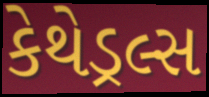
કેથેડ્રલ્સ